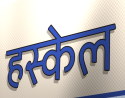
हस्केल